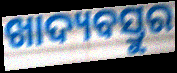
ଖାଦ୍ୟବସ୍ତୁର